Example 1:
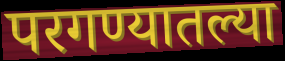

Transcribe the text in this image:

परगण्यातल्या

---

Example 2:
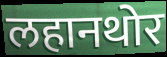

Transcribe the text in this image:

लहानथोर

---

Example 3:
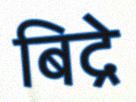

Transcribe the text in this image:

बिद्रे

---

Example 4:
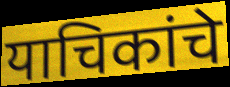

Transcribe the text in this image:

याचिकांचे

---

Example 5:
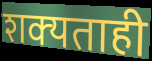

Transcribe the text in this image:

शक्‍यताही